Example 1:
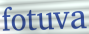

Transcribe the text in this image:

fotuva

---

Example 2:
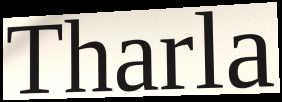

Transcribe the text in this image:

Tharla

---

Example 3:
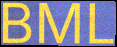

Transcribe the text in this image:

BML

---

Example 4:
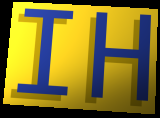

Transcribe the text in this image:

IH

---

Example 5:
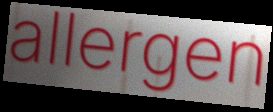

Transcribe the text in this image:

allergen